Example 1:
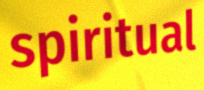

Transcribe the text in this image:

spiritual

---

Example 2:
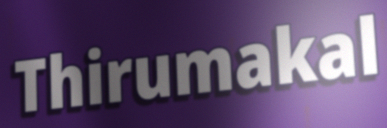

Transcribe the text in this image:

Thirumakal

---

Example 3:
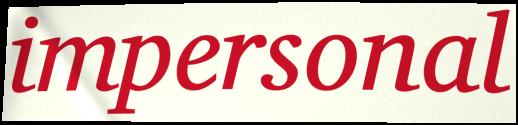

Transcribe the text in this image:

impersonal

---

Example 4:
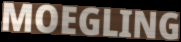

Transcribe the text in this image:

MOEGLING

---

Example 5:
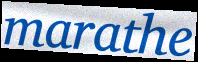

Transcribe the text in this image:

marathe